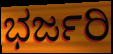
ಭರ್ಜರಿ